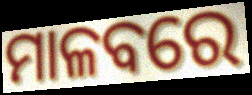
ମାଳବରେ